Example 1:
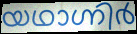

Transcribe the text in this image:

യഥാഗ്നിർ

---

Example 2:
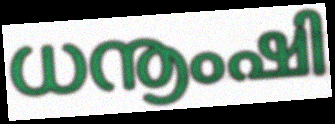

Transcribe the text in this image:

ധനൂംഷി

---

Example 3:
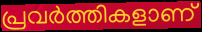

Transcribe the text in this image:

പ്രവർത്തികളാണ്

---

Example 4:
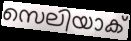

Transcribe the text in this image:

സെലിയാക്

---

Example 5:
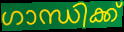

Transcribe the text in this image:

ഗാന്ധിക്ക്